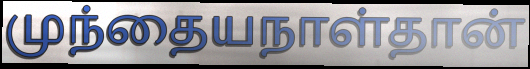
முந்தையநாள்தான்